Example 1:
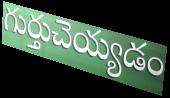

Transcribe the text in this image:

గుర్తుచెయ్యడం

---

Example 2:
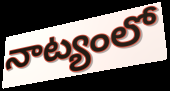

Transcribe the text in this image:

నాట్యంలో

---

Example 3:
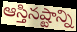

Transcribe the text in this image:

ఆస్తినష్టాన్ని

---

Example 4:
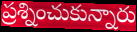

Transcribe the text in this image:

ప్రశ్నించుకున్నారు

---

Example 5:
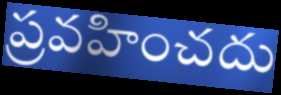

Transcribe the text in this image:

ప్రవహించదు